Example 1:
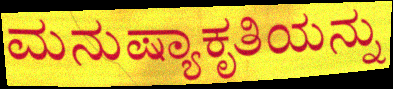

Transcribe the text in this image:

ಮನುಷ್ಯಾಕೃತಿಯನ್ನು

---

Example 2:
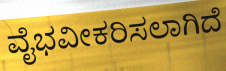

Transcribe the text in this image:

ವೈಭವೀಕರಿಸಲಾಗಿದೆ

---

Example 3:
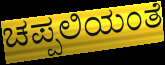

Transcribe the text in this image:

ಚಪ್ಪಲಿಯಂತೆ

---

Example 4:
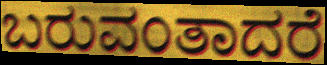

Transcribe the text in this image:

ಬರುವಂತಾದರೆ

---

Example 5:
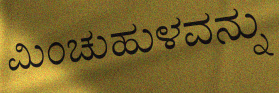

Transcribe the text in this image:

ಮಿಂಚುಹುಳವನ್ನು